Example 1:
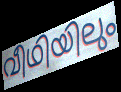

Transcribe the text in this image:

വീഥിയിലും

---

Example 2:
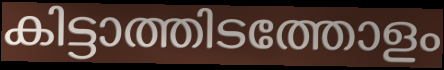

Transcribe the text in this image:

കിട്ടാത്തിടത്തോളം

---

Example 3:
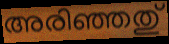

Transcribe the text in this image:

അരിഞ്ഞതു്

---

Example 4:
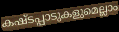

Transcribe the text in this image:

കഷ്ടപ്പാടുകളുമെല്ലാം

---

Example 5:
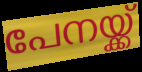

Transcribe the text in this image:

പേനയ്ക്ക്